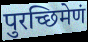
पुरच्छिमेणं